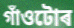
গাঁওটোৰ